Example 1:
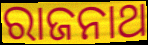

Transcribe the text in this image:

ରାଜନାଥ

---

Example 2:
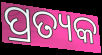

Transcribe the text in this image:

ପ୍ରତ୍ୟକ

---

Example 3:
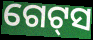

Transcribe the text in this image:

ଗେଟ୍‌ସ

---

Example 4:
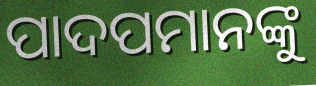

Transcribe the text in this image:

ପାଦପମାନଙ୍କୁ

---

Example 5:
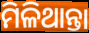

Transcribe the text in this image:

ମିଳିଥାନ୍ତା